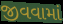
જીવવામાં